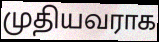
முதியவராக